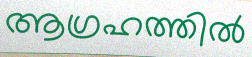
ആഗ്രഹത്തിൽ